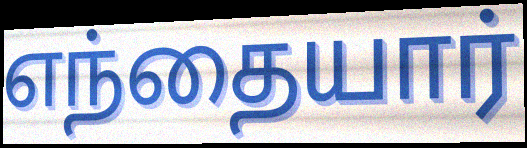
எந்தையார்